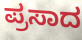
ಪ್ರಸಾದ